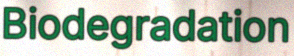
Biodegradation